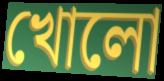
খোলো